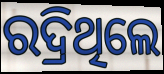
ରଦ୍ରିଥିଲେ